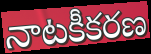
నాటకీకరణ